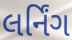
લર્નિંગ